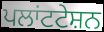
ਪਲਾਂਟਟੇਸ਼ਨ